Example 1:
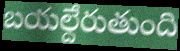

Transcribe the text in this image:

బయల్దేరుతుంది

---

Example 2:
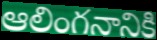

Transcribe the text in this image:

ఆలింగనానికి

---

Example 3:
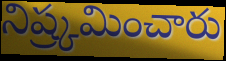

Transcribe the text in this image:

నిష్ర్కమించారు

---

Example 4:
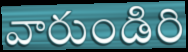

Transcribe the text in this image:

వారుండిరి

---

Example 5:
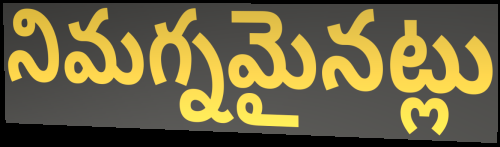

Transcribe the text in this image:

నిమగ్నమైనట్లు